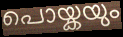
പൊയ്കയും